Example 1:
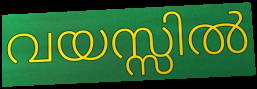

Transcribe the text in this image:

വയസ്സിൽ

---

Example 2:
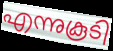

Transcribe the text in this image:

എന്നുകൂടി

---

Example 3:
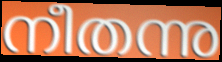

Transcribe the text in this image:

നീതന്നു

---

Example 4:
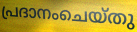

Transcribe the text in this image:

പ്രദാനംചെയ്തു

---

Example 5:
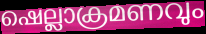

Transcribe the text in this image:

ഷെല്ലാക്രമണവും